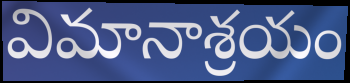
విమానాశ్రయం